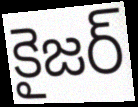
కైజర్